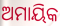
ଅମାୟିକ